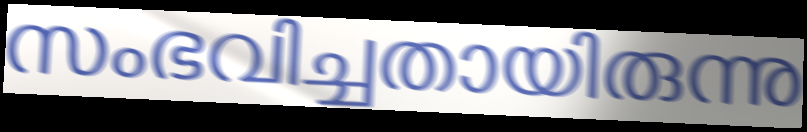
സംഭവിച്ചതായിരുന്നു